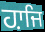
ਹ਼ਾਜਿ